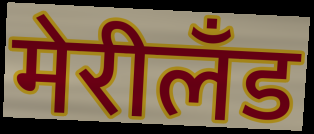
मेरीलँड